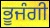
ਭੂਜੰਗੀ